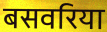
बसवरिया